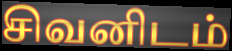
சிவனிடம்